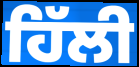
ਹਿੱਲੀ